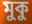
মুকু